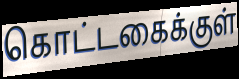
கொட்டகைக்குள்